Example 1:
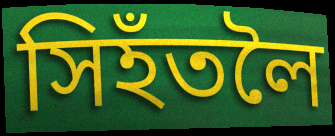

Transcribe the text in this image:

সিহঁতলৈ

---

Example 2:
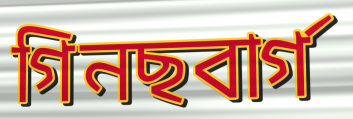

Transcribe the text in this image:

গিনছবাৰ্গ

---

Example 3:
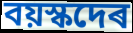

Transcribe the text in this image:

বয়স্কদেৰ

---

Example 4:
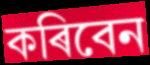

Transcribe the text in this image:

কৰিবেন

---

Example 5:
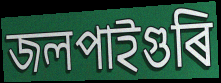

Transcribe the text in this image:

জলপাইগুৰি